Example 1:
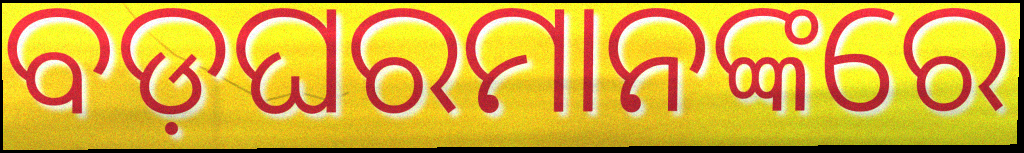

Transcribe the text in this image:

ବଡ଼ଘରମାନଙ୍କରେ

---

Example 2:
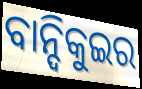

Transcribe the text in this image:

ବାନ୍ଦିକୁଇର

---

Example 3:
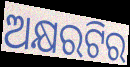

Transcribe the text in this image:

ଅକ୍ଷରଟିର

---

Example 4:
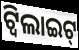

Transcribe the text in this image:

ଟ୍ୱିଲାଇଟ୍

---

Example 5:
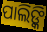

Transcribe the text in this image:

ପାଲିଙ୍କି